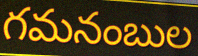
గమనంబుల